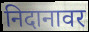
निदानावर